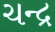
ચન્દ્ર